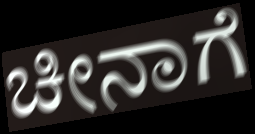
ಚೀನಾಗೆ